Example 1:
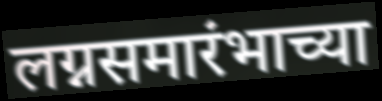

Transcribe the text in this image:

लग्नसमारंभाच्या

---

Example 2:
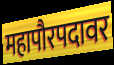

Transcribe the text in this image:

महापौरपदावर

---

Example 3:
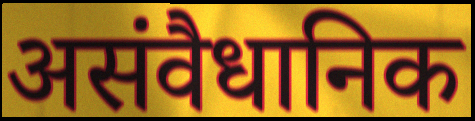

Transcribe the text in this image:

असंवैधानिक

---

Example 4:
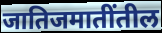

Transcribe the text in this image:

जातिजमातींतील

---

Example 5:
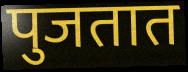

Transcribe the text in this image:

पुजतात